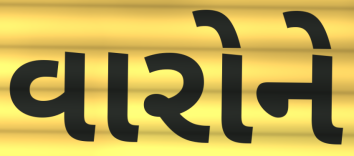
વારોને